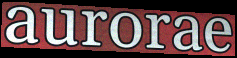
aurorae